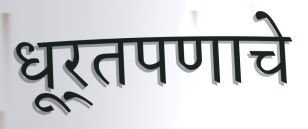
धूर्तपणाचे